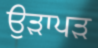
ਉੜਾਪੜ